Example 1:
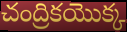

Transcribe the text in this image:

చంద్రికయొక్క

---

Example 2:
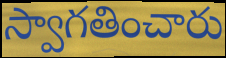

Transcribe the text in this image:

స్వాగతించారు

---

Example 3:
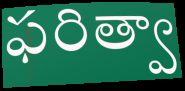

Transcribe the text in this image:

ఫరిత్వా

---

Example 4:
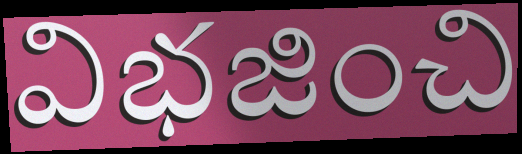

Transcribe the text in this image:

విభజించి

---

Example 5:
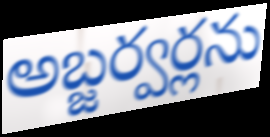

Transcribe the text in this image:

అబ్జర్వర్లను